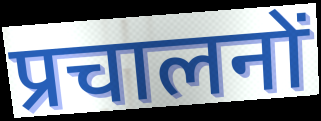
प्रचालनों